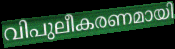
വിപുലീകരണമായി